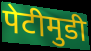
पेटीमुडी